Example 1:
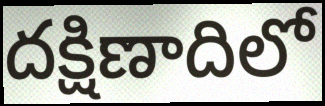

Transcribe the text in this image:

దక్షిణాదిలో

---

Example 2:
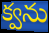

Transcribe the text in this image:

క్వను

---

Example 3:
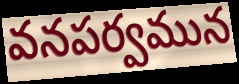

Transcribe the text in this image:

వనపర్వమున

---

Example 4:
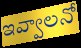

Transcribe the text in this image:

ఇవ్వాలనో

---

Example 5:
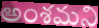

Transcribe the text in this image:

అంశమని